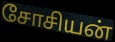
சோசியன்